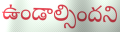
ఉండాల్సిందని